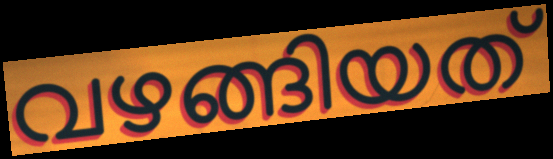
വഴങ്ങിയത്